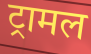
ट्रामल